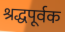
श्रद्धपूर्वक